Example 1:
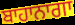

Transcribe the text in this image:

ਬਾਹਾਨਾਗਾ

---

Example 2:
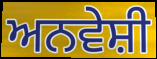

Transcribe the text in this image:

ਅਨਵੇਸ਼ੀ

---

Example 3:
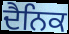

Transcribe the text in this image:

ਦੈਨਿਕ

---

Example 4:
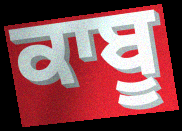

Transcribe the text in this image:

ਕਾਬੂ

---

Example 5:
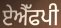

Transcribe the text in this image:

ਏਐੱਫਪੀ